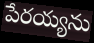
పేరయ్యను